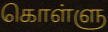
கொள்ளு